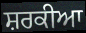
ਸ਼ਰਕੀਆ